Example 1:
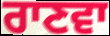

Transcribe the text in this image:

ਰਾਣਵਾ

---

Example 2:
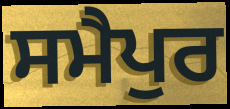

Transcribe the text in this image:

ਸਮੈਪੁਰ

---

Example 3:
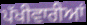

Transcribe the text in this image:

ਪੱਖੀਵਾਰੀਆਂ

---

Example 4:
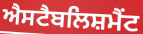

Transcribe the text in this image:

ਐਸਟੈਬਲਿਸ਼ਮੈਂਟ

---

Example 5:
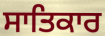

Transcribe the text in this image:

ਸਾਤਿਕਾਰ